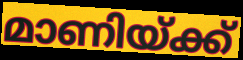
മാണിയ്ക്ക്